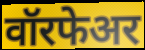
वॉरफेअर